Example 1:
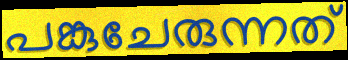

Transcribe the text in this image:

പങ്കുചേരുന്നത്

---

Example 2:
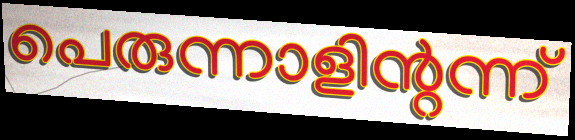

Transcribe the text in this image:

പെരുന്നാളിന്റന്ന്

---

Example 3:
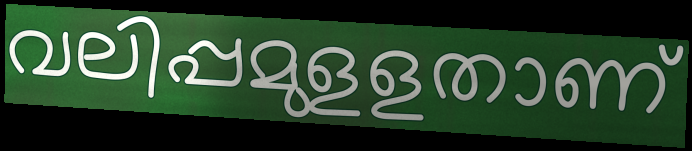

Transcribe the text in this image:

വലിപ്പമുളളതാണ്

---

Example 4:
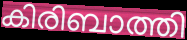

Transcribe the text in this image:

കിരിബാത്തി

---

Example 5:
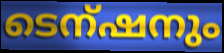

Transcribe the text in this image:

ടെന്ഷനും